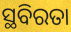
ସ୍ଥବିରତା